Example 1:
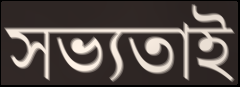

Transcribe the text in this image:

সভ্যতাই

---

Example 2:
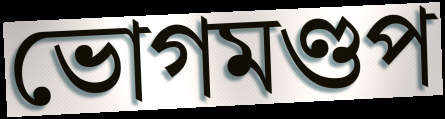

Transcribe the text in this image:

ভোগমণ্ডপ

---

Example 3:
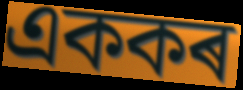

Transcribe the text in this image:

এককৰ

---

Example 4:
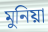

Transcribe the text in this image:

মুনিয়া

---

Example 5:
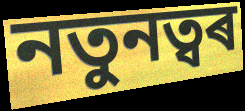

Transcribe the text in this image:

নতুনত্বৰ